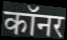
कॉनर